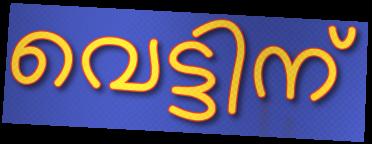
വെട്ടിന്